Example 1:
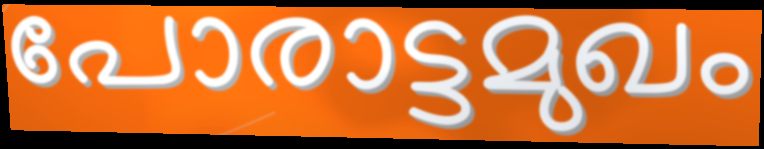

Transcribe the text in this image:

പോരാട്ടമുഖം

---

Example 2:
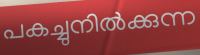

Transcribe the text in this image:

പകച്ചുനിൽക്കുന്ന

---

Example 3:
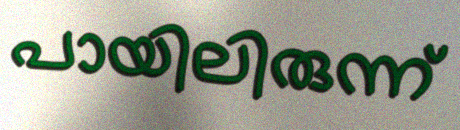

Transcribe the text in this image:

പായിലിരുന്ന്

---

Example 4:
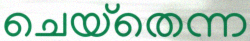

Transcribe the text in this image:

ചെയ്‌തെന്ന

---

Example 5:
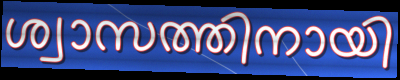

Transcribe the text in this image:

ശ്വാസത്തിനായി